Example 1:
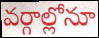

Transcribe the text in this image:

వర్గాల్లోనూ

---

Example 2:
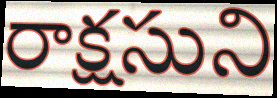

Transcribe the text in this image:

రాక్షసుని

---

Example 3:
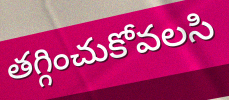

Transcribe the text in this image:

తగ్గించుకోవలసి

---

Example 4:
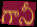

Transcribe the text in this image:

గానీ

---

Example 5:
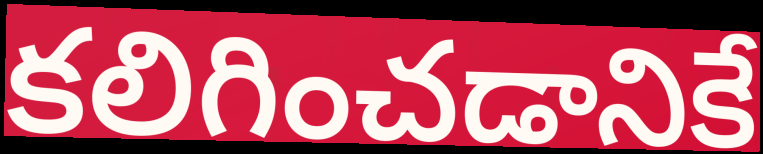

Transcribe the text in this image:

కలిగించడానికే